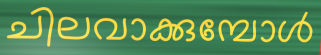
ചിലവാക്കുമ്പോൾ